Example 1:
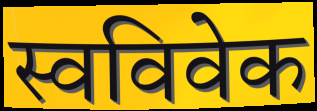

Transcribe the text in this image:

स्वविवेक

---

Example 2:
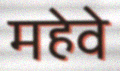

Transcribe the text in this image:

महेवे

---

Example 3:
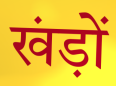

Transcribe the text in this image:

खंड़ों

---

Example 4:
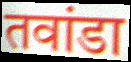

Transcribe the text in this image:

तवांडा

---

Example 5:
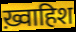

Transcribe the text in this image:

ख़्वाहिश